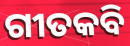
ଗୀତକବି